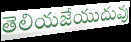
తెలియజేయుదువు